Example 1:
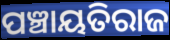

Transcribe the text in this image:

ପଞ୍ଚାୟତିରାଜ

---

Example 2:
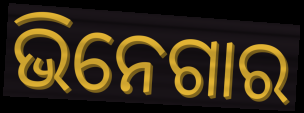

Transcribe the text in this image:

ଭିନେଗାର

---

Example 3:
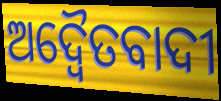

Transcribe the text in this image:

ଅଦ୍ୱୈତବାଦୀ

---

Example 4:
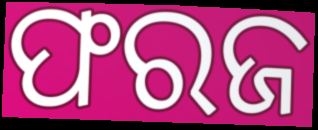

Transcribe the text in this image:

ଫରଜ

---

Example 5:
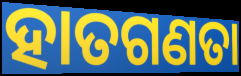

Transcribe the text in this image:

ହାତଗଣତା